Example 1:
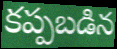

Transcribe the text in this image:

కప్పబడిన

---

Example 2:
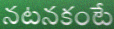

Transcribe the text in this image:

నటనకంటే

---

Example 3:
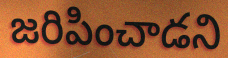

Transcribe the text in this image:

జరిపించాడని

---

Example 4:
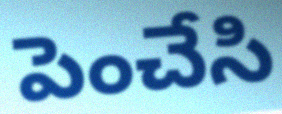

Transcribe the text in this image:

పెంచేసి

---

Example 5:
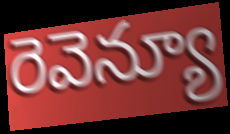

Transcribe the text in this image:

రెవెన్యూ